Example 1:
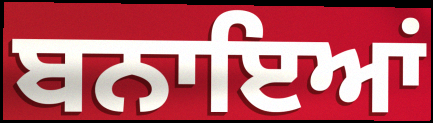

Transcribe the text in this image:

ਬਨਾਇਆਂ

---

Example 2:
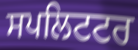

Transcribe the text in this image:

ਸਪਲਿਟਟਰ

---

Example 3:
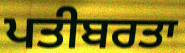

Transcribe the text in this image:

ਪਤੀਬਰਤਾ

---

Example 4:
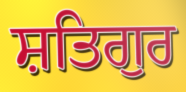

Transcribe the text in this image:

ਸ਼ਤਿਗੁਰ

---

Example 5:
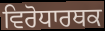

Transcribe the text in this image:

ਵਿਰੋਧਾਰਥਕ